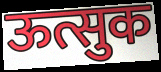
ऊत्सुक